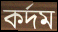
কর্দম